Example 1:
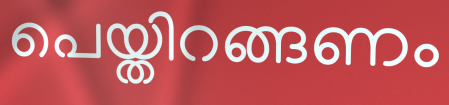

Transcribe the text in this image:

പെയ്തിറങ്ങണം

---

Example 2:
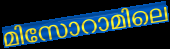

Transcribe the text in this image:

മിസോറാമിലെ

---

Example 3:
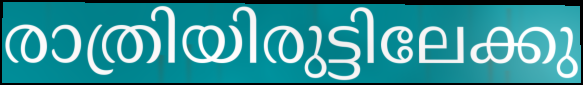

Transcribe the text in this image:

രാത്രിയിരുട്ടിലേക്കു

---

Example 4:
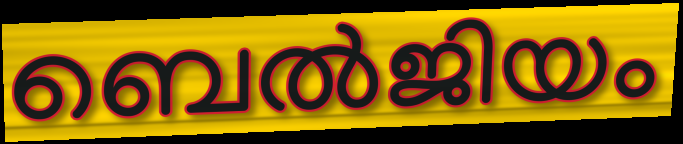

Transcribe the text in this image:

ബെൽജിയം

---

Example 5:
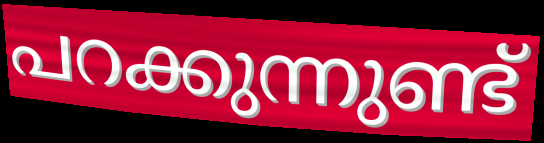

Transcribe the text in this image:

പറക്കുന്നുണ്ട്